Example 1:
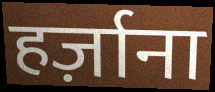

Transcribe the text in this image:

हर्ज़ाना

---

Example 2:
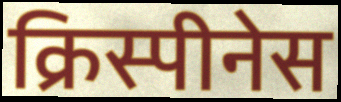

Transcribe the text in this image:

क्रिस्पीनेस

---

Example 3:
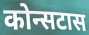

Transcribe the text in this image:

कोन्सटास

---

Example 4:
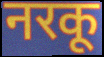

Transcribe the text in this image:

नरकू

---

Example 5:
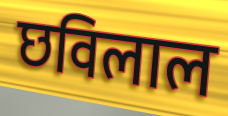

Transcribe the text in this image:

छविलाल